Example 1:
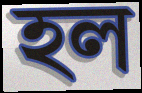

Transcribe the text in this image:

হল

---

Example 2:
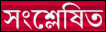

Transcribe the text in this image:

সংশ্লেষিত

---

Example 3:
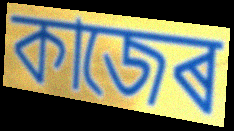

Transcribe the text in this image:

কাজেৰ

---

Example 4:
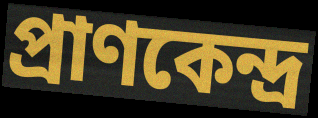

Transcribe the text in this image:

প্ৰাণকেন্দ্ৰ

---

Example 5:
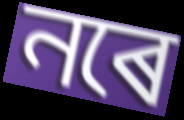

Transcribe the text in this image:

নৰে